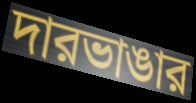
দারভাঙার